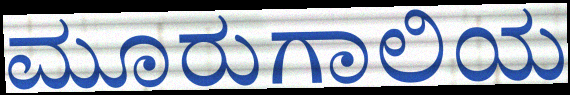
ಮೂರುಗಾಲಿಯ